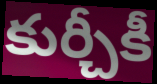
కుర్చీకీ